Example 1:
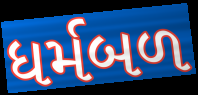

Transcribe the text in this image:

ધર્મબળ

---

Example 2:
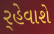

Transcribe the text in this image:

ર્‌હેવાશે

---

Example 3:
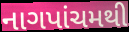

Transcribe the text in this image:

નાગપાંચમથી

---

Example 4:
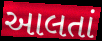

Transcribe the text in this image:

આલતાં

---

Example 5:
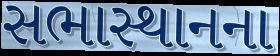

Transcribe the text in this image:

સભાસ્થાનના